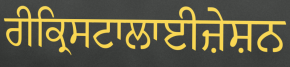
ਰੀਕ੍ਰਿਸਟਾਲਾਈਜ਼ੇਸ਼ਨ